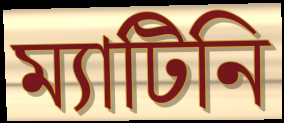
ম্যাটিনি